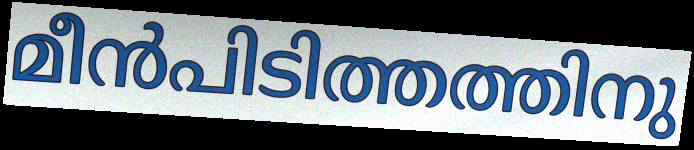
മീൻപിടിത്തത്തിനു